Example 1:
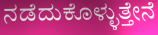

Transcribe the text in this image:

ನಡೆದುಕೊಳ್ಳುತ್ತೇನೆ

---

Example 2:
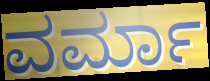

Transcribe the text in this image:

ವರ್ಮಾ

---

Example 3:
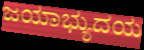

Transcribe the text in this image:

ಜಯಾಭ್ಯುದಯ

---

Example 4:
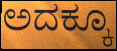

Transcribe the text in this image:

ಅದಕ್ಕೂ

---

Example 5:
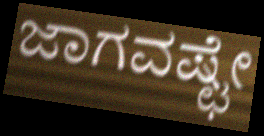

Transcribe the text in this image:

ಜಾಗವಷ್ಟೇ